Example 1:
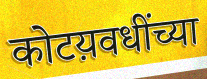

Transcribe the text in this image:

कोटय़वधींच्या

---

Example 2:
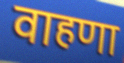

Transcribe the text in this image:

वाहणा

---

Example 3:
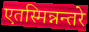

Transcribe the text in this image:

एतस्मिन्नन्तरे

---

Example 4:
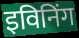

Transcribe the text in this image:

इविनिंग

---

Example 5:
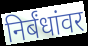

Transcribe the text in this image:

निर्बंधांवर